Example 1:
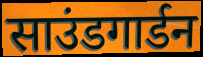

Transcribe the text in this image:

साउंडगार्डन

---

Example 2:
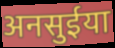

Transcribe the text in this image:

अनसुईया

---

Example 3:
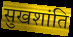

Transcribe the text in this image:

सुखशांति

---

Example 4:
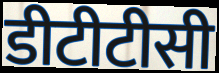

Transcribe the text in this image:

डीटीटीसी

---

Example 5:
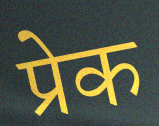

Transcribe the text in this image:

प्रेक